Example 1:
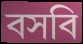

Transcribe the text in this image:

বসবি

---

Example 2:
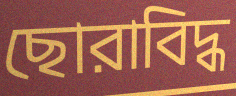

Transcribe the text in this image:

ছোরাবিদ্ধ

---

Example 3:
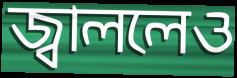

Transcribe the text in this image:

জ্বাললেও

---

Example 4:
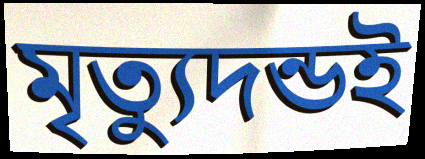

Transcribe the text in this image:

মৃত্যুদন্ডই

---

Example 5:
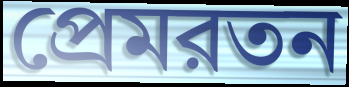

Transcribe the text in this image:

প্রেমরতন